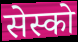
सेस्को